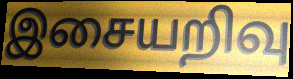
இசையறிவு